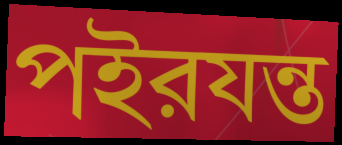
পইরযন্ত